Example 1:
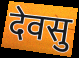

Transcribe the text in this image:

देवसु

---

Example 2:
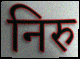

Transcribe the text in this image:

निरु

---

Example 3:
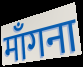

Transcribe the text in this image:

माँगना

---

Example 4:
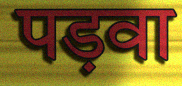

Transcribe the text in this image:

पड़वा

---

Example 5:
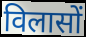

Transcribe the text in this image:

विलासों